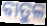
ବାତୁଳ